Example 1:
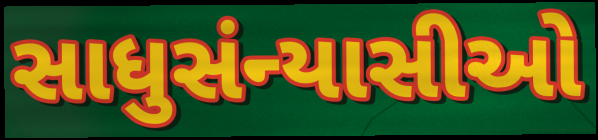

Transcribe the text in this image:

સાધુસંન્યાસીઓ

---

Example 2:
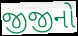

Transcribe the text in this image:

જીજીનો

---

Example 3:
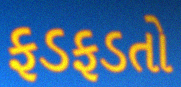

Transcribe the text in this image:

ફડફડતો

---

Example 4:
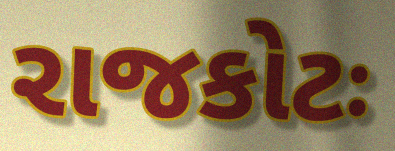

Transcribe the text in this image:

રાજકોટઃ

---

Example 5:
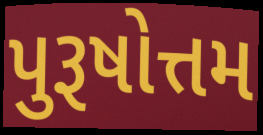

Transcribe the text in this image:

પુરૂષોત્તમ